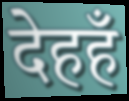
देहहँ